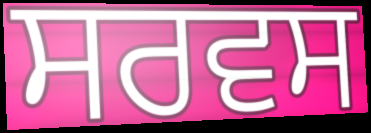
ਸਰਵਸ